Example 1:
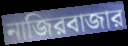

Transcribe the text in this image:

নাজিরবাজার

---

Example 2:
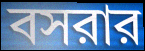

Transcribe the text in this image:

বসরার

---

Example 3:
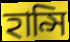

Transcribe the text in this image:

হান্সি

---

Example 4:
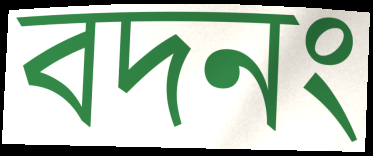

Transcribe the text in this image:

বদনং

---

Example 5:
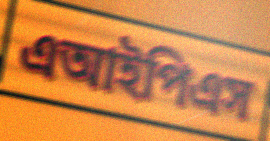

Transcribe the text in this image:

এআইপিএস